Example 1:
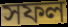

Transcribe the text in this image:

সফল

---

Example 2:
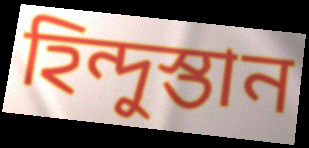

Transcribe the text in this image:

হিন্দুস্তান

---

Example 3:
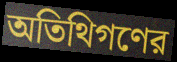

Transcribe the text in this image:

অতিথিগণের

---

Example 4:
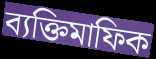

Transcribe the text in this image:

ব্যক্তিমাফিক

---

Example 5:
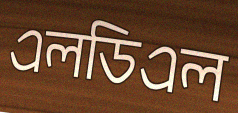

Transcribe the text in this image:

এলডিএল